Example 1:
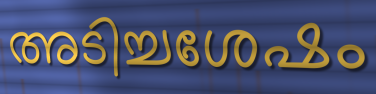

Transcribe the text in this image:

അടിച്ചശേഷം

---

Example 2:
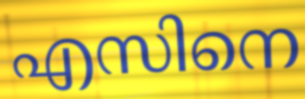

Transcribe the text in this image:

എസിനെ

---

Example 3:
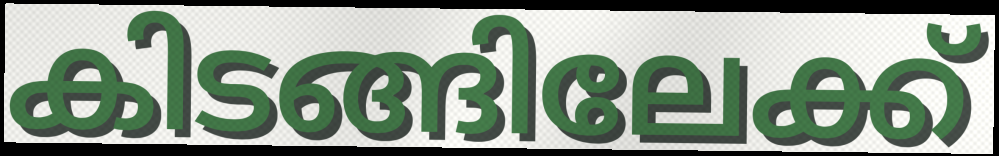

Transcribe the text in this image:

കിടങ്ങിലേക്ക്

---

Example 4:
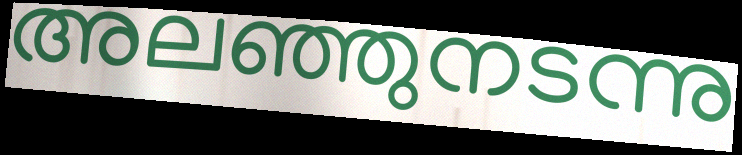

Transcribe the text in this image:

അലഞ്ഞുനടന്നു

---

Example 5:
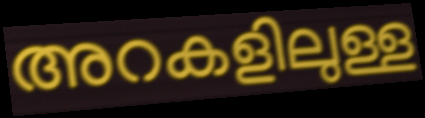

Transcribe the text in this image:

അറകളിലുള്ള